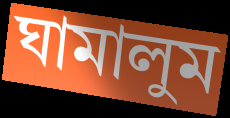
ঘামালুম